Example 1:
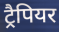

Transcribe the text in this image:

ट्रैपियर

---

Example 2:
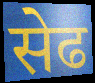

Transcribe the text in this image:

सेढ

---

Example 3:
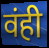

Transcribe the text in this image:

वंही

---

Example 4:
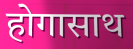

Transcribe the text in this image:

होगासाथ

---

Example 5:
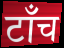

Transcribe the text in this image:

टाँच